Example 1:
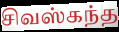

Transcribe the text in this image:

சிவஸ்கந்த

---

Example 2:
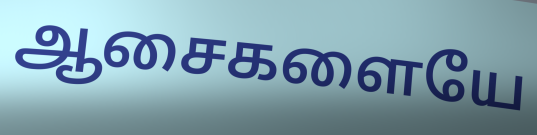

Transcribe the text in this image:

ஆசைகளையே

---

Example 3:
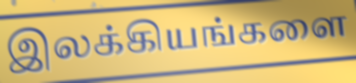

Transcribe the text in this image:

இலக்கியங்களை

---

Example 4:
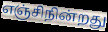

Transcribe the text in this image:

எஞ்சிநின்றது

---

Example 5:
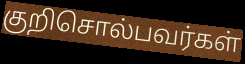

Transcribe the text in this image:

குறிசொல்பவர்கள்